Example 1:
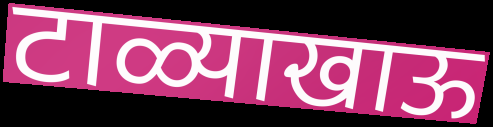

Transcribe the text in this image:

टाळ्याखाऊ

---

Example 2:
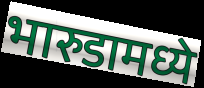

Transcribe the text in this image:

भारुडामध्ये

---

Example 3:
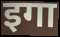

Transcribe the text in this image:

इगा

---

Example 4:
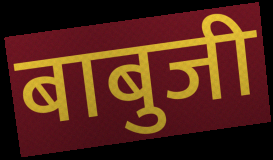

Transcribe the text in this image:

बाबुजी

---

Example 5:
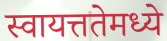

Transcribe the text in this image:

स्वायत्ततेमध्ये